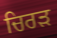
ਚਿਰੜ